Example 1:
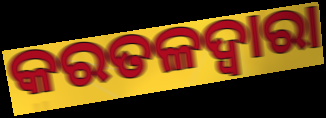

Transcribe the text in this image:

କରତଳଦ୍ୱାରା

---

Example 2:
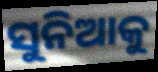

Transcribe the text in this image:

ସୁନିଆକୁ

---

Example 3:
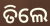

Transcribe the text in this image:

ତିଲେ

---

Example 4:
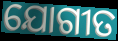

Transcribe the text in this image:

ଯୋଗୀତ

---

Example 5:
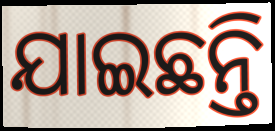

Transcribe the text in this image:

ଯାଇଛନ୍ତି